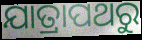
ଯାତ୍ରାପଥରୁ